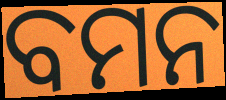
ବମନ